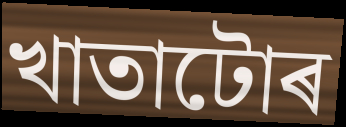
খাতাটোৰ